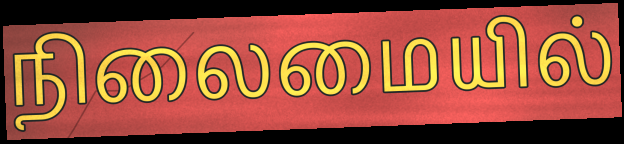
நிலைமையில்